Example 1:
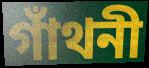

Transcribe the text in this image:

গাঁথনী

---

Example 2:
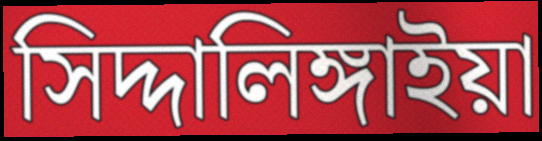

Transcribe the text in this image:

সিদ্দালিঙ্গাইয়া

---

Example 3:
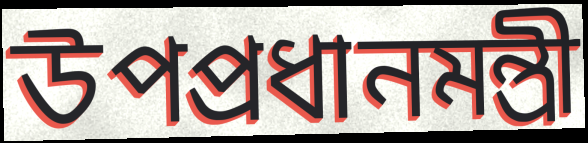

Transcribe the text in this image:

উপপ্রধানমন্ত্রী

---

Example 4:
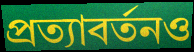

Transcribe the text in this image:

প্রত্যাবর্তনও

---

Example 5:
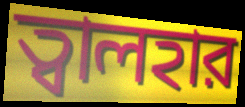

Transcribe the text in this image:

ত্বালহার